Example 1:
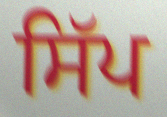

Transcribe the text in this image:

ਸਿੱਪ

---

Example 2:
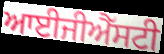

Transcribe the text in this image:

ਆਈਜੀਐੱਸਟੀ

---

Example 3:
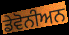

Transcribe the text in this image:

ਡੇਵੋਨੀਅਨ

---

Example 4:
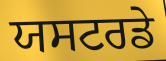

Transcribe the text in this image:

ਯਸਟਰਡੇ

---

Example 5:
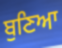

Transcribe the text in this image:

ਬੁਣਿਆ